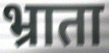
भ्राता